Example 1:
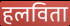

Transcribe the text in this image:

हलविता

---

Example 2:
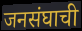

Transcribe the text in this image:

जनसंघाची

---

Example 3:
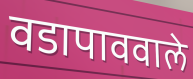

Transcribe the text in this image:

वडापाववाले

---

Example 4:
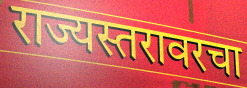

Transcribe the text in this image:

राज्यस्तरावरचा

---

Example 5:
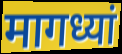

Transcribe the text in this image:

मागध्यां